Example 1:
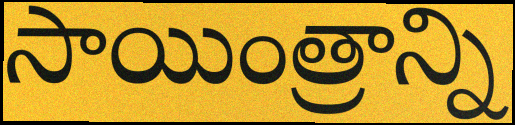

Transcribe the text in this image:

సాయింత్రాన్ని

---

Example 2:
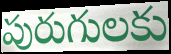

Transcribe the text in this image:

పురుగులకు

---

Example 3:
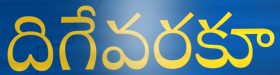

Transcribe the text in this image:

దిగేవరకూ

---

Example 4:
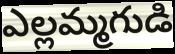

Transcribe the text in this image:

ఎల్లమ్మగుడి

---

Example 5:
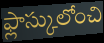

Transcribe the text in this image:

ఫ్లాస్కులోంచి